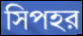
সিপহর